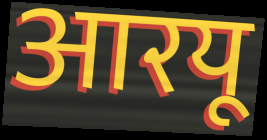
आरयू